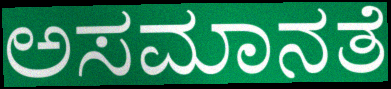
ಅಸಮಾನತೆ